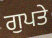
ਗੁਪਤੇ